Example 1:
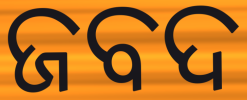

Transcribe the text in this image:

ଜବଦ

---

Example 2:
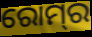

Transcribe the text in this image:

ରୋମ୍‍ର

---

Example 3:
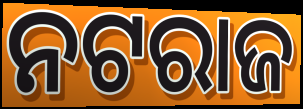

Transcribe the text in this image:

ନଟରାଜ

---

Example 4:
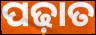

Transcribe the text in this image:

ପଢ଼ାତ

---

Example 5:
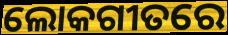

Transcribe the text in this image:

ଲୋକଗୀତରେ